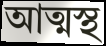
আত্মস্থ